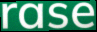
rase